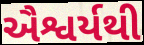
ઐશ્વર્યથી